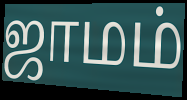
ஜாமம்